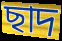
ছাদ